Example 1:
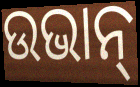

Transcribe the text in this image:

ଉଭାନ୍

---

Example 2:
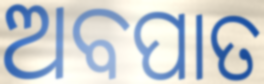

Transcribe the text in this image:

ଅବପାତ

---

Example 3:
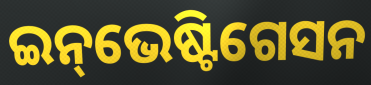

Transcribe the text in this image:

ଇନ୍‌ଭେଷ୍ଟିଗେସନ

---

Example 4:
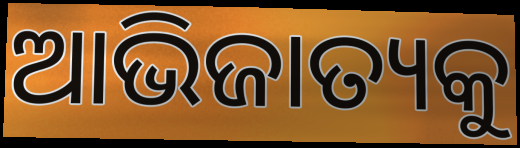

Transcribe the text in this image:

ଆଭିଜାତ୍ୟକୁ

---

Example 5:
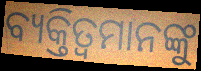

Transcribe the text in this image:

ବ୍ୟକ୍ତିତ୍ବମାନଙ୍କୁ